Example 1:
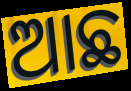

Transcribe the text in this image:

ଆଛ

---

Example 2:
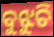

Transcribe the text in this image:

ବୁଝୁଚି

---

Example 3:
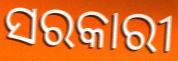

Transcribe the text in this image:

ସରକାରୀ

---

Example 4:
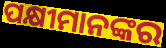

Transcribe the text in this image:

ପକ୍ଷୀମାନଙ୍କର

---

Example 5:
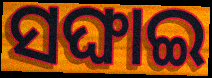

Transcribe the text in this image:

ସଙ୍ଘାଇ